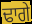
ਢਾਗੇ